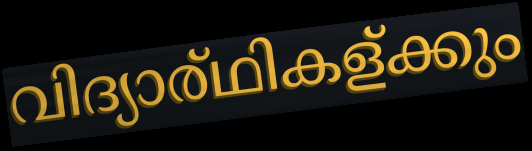
വിദ്യാര്ഥികള്ക്കും